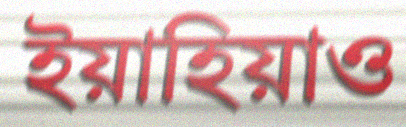
ইয়াহিয়াও